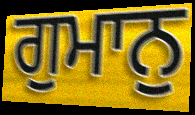
ਗੁਮਾਨੁ